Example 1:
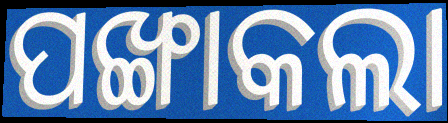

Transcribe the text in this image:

ପଙ୍ଖାକଲା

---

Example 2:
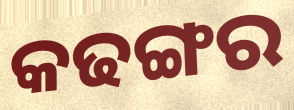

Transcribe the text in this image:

କଢଙ୍ଗର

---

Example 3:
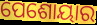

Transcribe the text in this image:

ପେଶୋୟାର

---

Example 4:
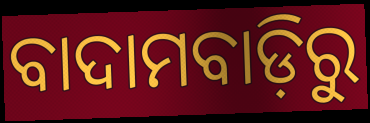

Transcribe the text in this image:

ବାଦାମବାଡ଼ିରୁ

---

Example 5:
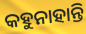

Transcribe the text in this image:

କହୁନାହାନ୍ତି